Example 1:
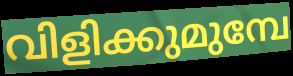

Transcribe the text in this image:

വിളിക്കുമുമ്പേ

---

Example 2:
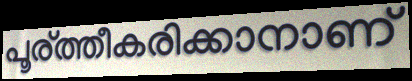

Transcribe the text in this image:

പൂര്ത്തീകരിക്കാനാണ്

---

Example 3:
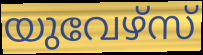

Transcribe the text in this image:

യുവേഴ്സ്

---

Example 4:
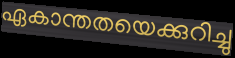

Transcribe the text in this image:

ഏകാന്തതയെക്കുറിച്ചു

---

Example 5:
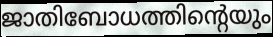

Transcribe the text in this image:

ജാതിബോധത്തിന്റെയും